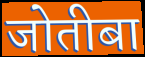
जोतीबा